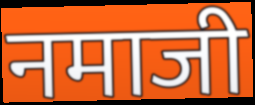
नमाजी